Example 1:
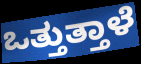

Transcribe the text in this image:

ಒತ್ತುತ್ತಾಳೆ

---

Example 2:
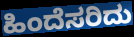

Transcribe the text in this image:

ಹಿಂದೆಸರಿದು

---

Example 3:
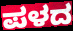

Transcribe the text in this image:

ಪಳದ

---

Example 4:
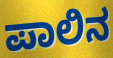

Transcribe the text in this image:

ಪಾಲಿನ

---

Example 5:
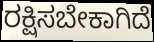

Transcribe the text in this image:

ರಕ್ಷಿಸಬೇಕಾಗಿದೆ